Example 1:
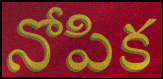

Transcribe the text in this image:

నోపిక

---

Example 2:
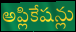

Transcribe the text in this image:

అప్లికేషన్లు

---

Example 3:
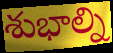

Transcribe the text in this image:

శుభాల్ని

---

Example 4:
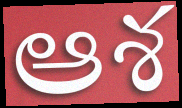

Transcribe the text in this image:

ఆశ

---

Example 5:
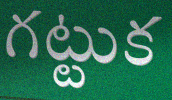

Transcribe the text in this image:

గట్టుక